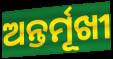
ଅନ୍ତର୍ମୂଖୀ